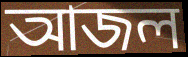
আজল